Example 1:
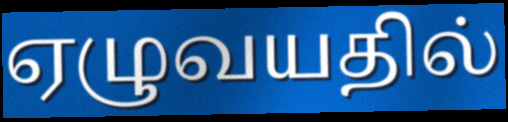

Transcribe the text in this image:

ஏழுவயதில்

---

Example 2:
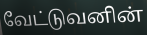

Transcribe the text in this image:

வேட்டுவனின்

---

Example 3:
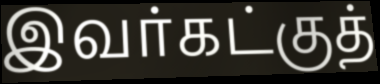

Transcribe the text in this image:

இவர்கட்குத்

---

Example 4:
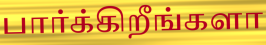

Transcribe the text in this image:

பார்க்கிறீங்களா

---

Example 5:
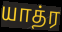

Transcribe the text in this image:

யாத்ர